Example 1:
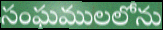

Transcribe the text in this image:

సంఘములలోను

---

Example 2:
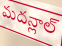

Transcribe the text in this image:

మదన్లాల్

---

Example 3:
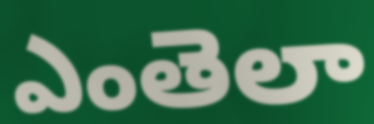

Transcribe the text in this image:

ఎంతెలా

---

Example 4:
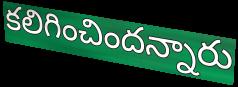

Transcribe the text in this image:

కలిగించిందన్నారు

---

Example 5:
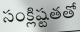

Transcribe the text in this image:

సంక్లిష్టతతో